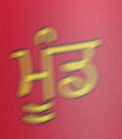
ਮੂੰਡ